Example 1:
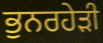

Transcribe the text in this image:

ਭੁਨਰਹੇੜੀ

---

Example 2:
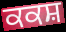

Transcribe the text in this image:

ਕਕਸ਼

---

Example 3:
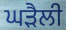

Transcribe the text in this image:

ਘੜੈਲੀ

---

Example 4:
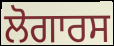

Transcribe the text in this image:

ਲੋਗਾਰਸ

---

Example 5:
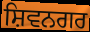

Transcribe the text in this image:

ਸ਼ਿਵਨਗਰ